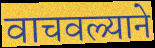
वाचवल्याने